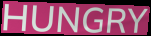
HUNGRY